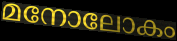
മനോലോകം